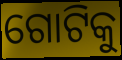
ଗୋଟିକୁ